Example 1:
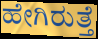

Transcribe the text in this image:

ಹೇಗಿರುತ್ತೆ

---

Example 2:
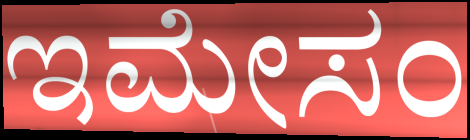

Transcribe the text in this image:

ಇಮೇಸಂ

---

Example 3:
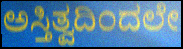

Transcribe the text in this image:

ಅಸ್ತಿತ್ವದಿಂದಲೇ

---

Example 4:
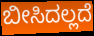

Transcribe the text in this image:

ಬೀಸಿದಲ್ಲದೆ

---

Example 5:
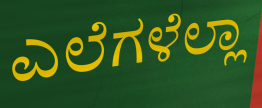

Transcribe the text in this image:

ಎಲೆಗಳೆಲ್ಲಾ